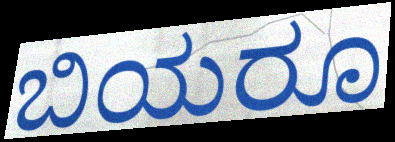
ಬಿಯರೂ